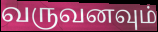
வருவனவும்